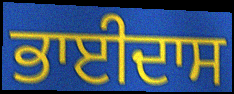
ਭਾਈਦਾਸ